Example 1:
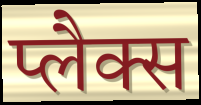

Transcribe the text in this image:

प्लैक्स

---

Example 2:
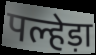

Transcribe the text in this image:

पल्हेड़ा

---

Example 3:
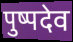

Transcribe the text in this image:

पुष्पदेव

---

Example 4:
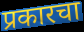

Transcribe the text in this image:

प्रकारचा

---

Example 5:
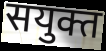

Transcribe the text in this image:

सयुक्‍त